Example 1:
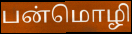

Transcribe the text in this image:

பன்மொழி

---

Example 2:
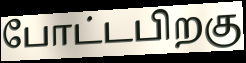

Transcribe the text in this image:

போட்டபிறகு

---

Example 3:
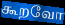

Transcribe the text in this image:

கூறவோ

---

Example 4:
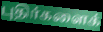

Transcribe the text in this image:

புதிர்களைக்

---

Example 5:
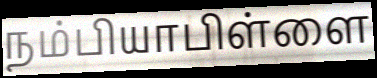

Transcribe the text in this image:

நம்பியாபிள்ளை